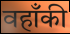
वहाँकी